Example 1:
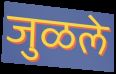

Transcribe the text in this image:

जुळले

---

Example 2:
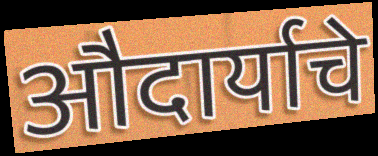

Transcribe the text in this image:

औदार्याचे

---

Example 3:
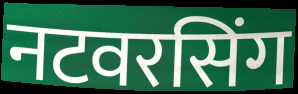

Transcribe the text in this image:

नटवरसिंग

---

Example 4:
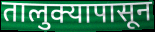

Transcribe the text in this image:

तालुक्यापासून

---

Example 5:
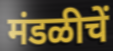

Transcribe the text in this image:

मंडळीचें